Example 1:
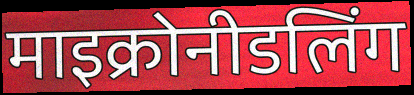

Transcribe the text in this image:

माइक्रोनीडलिंग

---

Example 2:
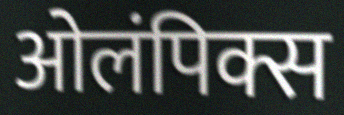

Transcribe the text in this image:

ओलंपिक्स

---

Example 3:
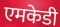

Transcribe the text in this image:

एमकेडी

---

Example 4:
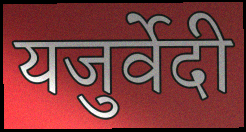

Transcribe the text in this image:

यजुर्वेदी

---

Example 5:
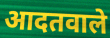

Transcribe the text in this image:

आदतवाले